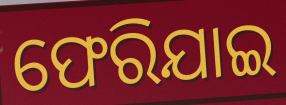
ଫେରିଯାଇ